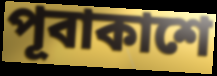
পূবাকাশে